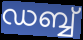
ഡബ്ബ്